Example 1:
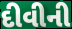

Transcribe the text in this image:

દીવીની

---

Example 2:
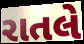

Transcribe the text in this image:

રાતલે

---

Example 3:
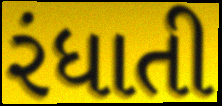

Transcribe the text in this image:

રંધાતી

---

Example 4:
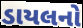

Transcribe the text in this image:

ડાયલનો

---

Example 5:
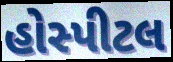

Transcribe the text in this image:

હોસ્પીટલ